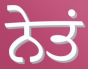
ਨੇਤਂ